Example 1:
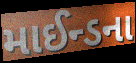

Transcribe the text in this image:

માઈન્ડના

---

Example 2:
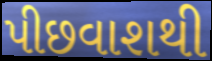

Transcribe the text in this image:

પીછવાશથી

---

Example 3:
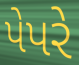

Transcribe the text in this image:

પેપરે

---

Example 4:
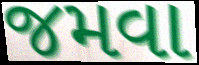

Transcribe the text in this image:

જમવા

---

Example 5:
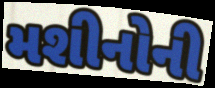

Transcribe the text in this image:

મશીનોની